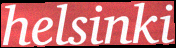
helsinki